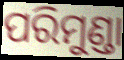
ପରିମୁଣ୍ଡା